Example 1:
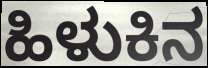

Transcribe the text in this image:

ಹಿಳುಕಿನ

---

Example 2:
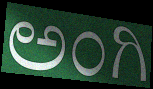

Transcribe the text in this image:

ಅಂಗಿ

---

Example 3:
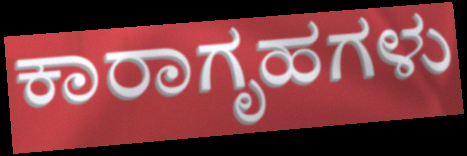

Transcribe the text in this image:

ಕಾರಾಗೃಹಗಳು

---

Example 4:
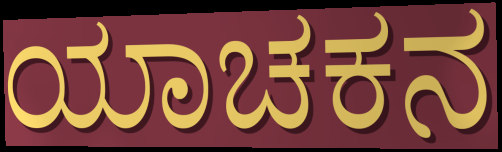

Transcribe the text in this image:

ಯಾಚಕನ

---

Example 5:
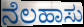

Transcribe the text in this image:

ನೆಲಹಾಸು